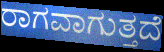
ರಾಗವಾಗುತ್ತದೆ